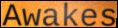
Awakes